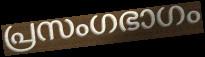
പ്രസംഗഭാഗം